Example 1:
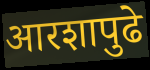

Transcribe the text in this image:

आरशापुढे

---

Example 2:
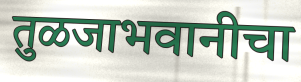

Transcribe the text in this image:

तुळजाभवानीचा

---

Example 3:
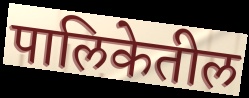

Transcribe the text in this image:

पालिकेतील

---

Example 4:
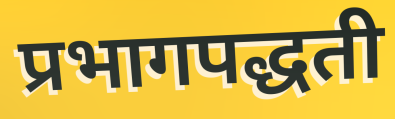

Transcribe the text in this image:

प्रभागपद्धती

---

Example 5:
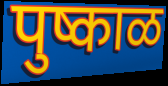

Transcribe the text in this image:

पुष्काळ